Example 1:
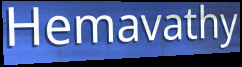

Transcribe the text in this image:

Hemavathy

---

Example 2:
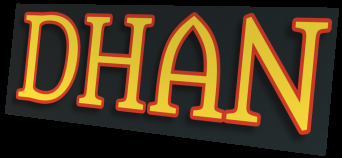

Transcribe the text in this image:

DHAN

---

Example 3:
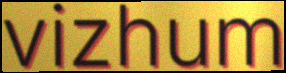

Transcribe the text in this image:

vizhum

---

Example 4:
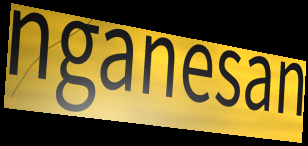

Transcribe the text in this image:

nganesan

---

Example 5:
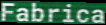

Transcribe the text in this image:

Fabrica